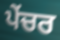
ਪੇਂਚਰ